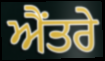
ਐਂਤਰੇ